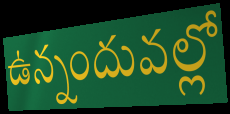
ఉన్నందువల్లో